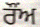
ਰੌਂਅ